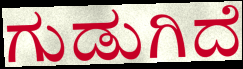
ಗುಡುಗಿದೆ